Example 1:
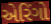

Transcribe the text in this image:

એરિંગો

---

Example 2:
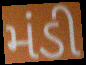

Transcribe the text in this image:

મંડી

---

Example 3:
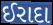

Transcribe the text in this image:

ઈરાદા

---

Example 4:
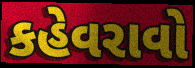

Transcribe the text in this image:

કહેવરાવો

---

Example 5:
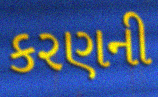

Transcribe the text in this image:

કરણની